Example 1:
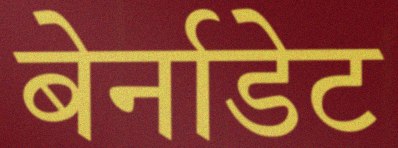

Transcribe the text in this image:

बेर्नाडेट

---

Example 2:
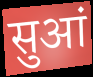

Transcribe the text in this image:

सुआं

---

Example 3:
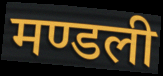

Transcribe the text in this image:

मण्डली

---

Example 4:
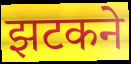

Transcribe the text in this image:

झटकने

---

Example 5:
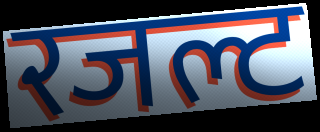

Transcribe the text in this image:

रजल्ट